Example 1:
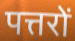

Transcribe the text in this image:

पत्तरों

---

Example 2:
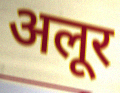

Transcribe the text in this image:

अलूर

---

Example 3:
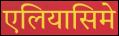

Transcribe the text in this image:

एलियासिमे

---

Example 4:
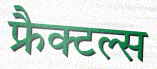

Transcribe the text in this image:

फ्रैक्टल्स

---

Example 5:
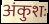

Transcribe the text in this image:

अंकुशः